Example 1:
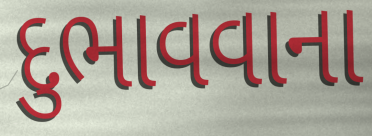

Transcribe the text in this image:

દુભાવવાના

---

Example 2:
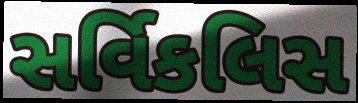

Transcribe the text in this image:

સર્વિકલિસ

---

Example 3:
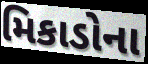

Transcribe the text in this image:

મિકાડોના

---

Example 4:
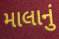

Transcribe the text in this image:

માલાનું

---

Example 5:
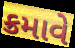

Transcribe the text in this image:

ક્રમાવે